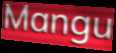
Mangu